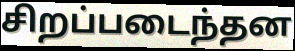
சிறப்படைந்தன